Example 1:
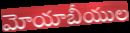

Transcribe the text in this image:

మోయాబీయుల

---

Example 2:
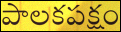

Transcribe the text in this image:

పాలకపక్షం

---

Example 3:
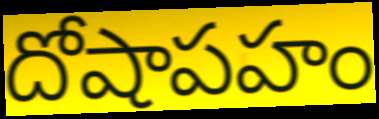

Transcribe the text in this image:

దోషాపహం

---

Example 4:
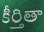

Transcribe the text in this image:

కీర్తితా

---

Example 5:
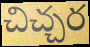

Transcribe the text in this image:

చిచ్చర